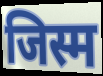
जिस्म